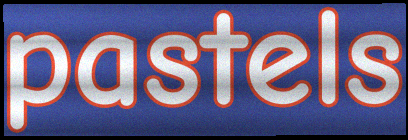
pastels